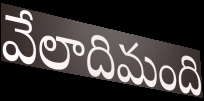
వేలాదిమంది